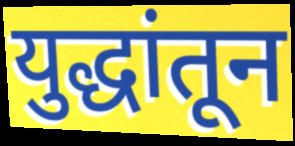
युद्धांतून